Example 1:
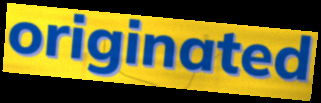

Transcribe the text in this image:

originated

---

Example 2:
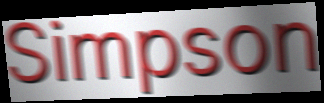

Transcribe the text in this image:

Simpson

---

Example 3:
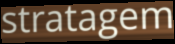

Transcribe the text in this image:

stratagem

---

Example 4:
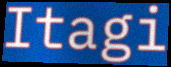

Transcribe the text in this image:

Itagi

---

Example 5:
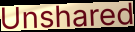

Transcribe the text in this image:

Unshared